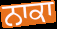
ਨਾਕਾ